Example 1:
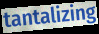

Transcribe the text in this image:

tantalizing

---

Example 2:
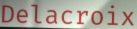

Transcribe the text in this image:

Delacroix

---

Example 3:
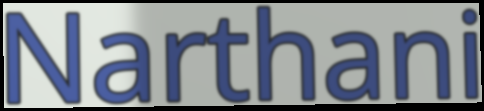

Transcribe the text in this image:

Narthani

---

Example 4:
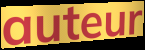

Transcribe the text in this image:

auteur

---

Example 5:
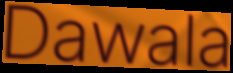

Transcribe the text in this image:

Dawala